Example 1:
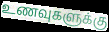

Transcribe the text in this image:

உணவுகளுக்கு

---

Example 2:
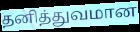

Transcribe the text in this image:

தனித்துவமான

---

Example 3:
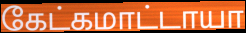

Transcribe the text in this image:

கேட்கமாட்டாயா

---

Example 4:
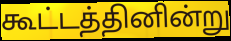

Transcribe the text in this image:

கூட்டத்தினின்று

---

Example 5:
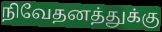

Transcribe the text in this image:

நிவேதனத்துக்கு